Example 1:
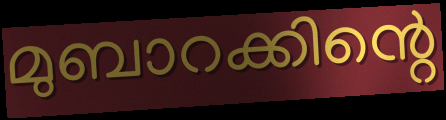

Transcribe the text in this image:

മുബാറക്കിന്റെ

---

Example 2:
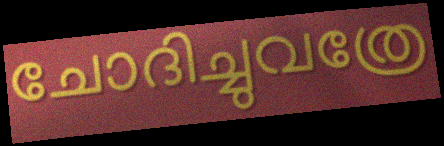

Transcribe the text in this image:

ചോദിച്ചുവത്രേ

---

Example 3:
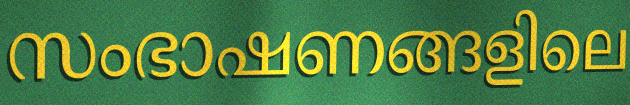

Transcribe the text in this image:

സംഭാഷണങ്ങളിലെ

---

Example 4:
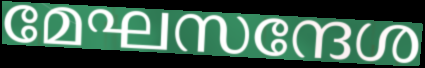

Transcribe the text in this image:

മേഘസന്ദേശ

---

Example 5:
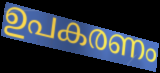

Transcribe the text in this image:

ഉപകരണം